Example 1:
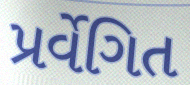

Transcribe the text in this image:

પ્રર્વેગિત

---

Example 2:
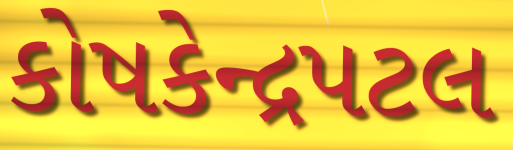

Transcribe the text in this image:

કોષકેન્દ્રપટલ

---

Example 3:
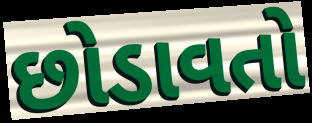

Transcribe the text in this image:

છોડાવતો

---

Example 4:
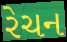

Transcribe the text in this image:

રેચન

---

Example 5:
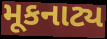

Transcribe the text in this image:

મૂકનાટ્ય